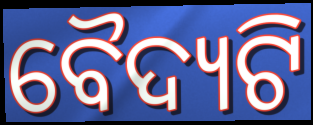
ବୈଦ୍ୟଟି